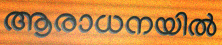
ആരാധനയിൽ